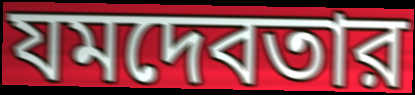
যমদেবতার